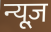
न्‍यूज़